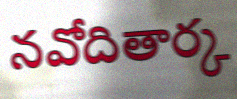
నవోదితార్క